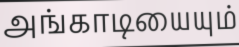
அங்காடியையும்